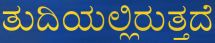
ತುದಿಯಲ್ಲಿರುತ್ತದೆ